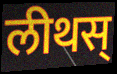
लीथस्